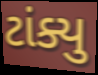
ટાંક્યુ